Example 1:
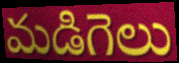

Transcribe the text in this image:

మడిగెలు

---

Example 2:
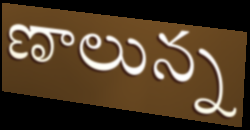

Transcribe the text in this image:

ణాలున్న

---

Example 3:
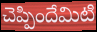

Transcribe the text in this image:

చెప్పిందేమిటి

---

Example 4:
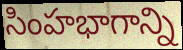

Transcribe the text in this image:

సింహభాగాన్ని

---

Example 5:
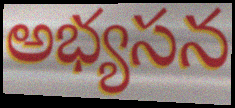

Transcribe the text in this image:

అభ్యసన